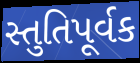
સ્તુતિપૂર્વક